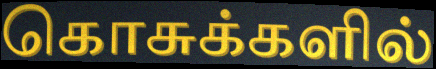
கொசுக்களில்